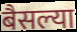
बैसल्या